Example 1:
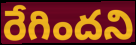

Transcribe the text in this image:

రేగిందని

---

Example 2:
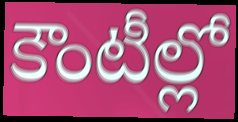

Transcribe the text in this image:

కౌంటీల్లో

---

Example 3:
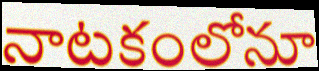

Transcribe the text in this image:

నాటకంలోనూ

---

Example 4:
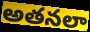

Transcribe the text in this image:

అతనలా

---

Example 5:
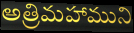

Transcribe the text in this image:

అత్రిమహాముని